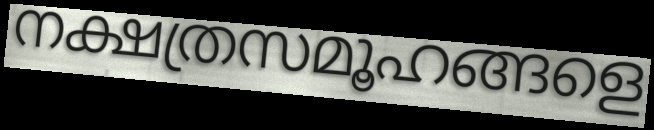
നക്ഷത്രസമൂഹങ്ങളെ